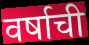
वर्षाची